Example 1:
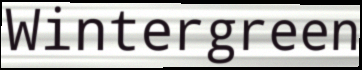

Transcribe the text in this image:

Wintergreen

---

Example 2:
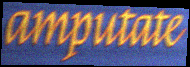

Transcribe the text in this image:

amputate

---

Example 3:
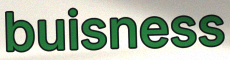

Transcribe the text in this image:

buisness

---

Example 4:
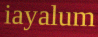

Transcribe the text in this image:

iayalum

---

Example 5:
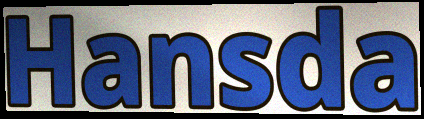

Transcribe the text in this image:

Hansda